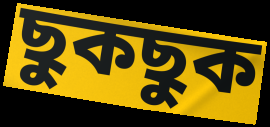
ছুকছুক